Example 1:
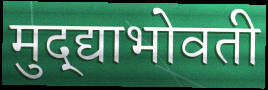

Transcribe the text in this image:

मुद्द्याभोवती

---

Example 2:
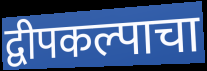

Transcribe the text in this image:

द्वीपकल्पाचा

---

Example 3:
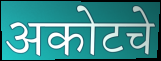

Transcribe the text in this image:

अकोटचे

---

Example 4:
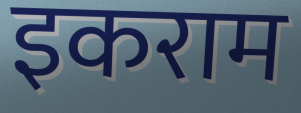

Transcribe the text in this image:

इकराम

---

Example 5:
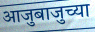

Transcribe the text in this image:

आजुबाजुच्या